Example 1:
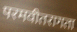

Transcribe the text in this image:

परमवीतरागता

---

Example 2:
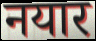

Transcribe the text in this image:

नयार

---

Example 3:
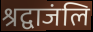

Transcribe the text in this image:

श्रद्वाजंलि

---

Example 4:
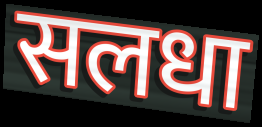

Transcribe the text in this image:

सलधा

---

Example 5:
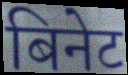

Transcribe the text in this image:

बिनेट